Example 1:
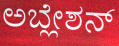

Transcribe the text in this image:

ಅಬ್ಲೇಶನ್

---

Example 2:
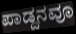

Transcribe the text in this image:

ಪಾಡ್ದನವೂ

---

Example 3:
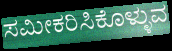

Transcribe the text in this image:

ಸಮೀಕರಿಸಿಕೊಳ್ಳುವ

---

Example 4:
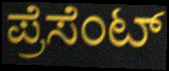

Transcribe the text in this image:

ಪ್ರೆಸೆಂಟ್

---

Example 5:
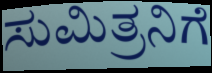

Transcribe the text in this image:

ಸುಮಿತ್ರನಿಗೆ